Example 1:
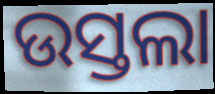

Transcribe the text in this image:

ଉସ୍ତଲା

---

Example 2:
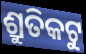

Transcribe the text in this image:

ଶ୍ରୁତିକଟୁ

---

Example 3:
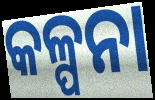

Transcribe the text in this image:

କଳ୍ପନା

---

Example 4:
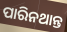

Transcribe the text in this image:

ପାରିନଥାନ୍ତ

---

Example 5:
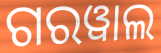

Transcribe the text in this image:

ଗରୱାଲ